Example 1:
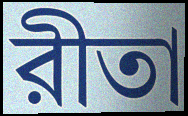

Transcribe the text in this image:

রীতা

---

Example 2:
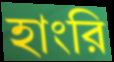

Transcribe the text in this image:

হাংরি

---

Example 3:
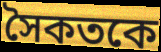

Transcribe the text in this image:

সৈকতকে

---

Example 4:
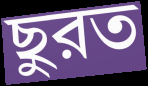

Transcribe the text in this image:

ছুরত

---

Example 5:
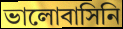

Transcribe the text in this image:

ভালোবাসিনি